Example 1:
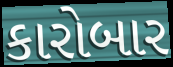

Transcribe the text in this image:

કારોબાર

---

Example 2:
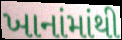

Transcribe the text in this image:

ખાનાંમાંથી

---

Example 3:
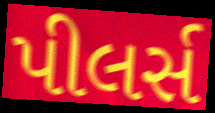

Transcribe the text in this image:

પીલર્સ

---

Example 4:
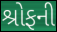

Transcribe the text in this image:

શ્રોફની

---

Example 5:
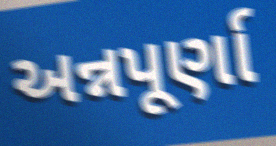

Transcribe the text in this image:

અન્નપૂર્ણા